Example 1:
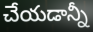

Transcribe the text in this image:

చేయడాన్నీ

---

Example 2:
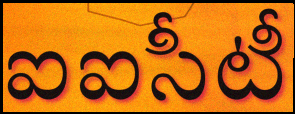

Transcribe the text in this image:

ఐఐసీటీ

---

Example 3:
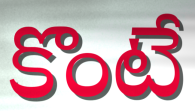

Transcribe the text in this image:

కొంటే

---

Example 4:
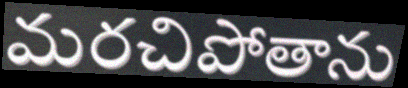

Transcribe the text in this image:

మరచిపోతాను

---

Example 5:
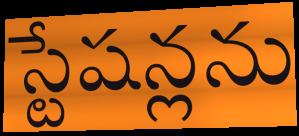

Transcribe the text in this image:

స్టేషన్లను